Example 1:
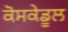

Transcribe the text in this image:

ਕੋਸਕੇਡੂਲ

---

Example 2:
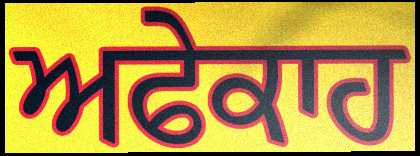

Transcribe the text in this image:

ਅਫੇਕਾਹ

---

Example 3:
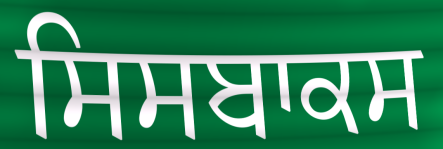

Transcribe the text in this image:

ਸਿਸਬਾਕਸ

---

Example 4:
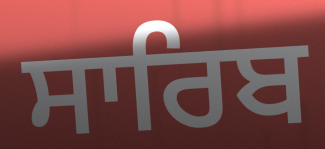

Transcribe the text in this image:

ਸਾਰਿਬ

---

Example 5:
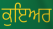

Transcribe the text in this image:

ਕੁਇਅਰ